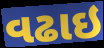
વઢાઇ